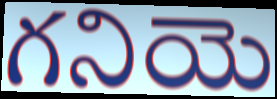
గనియె